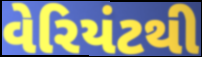
વેરિયંટથી